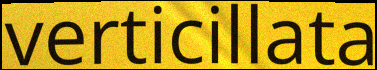
verticillata